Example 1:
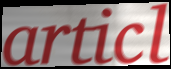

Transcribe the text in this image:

articl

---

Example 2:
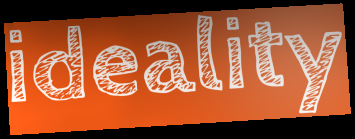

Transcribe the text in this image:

ideality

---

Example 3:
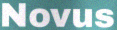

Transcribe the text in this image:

Novus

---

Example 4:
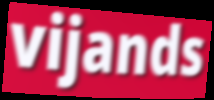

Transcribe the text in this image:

vijands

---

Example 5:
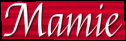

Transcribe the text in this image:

Mamie